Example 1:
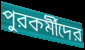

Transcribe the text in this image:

পুরকর্মীদের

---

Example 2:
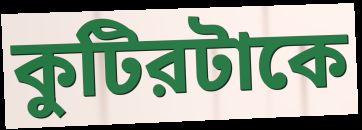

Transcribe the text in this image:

কুটিরটাকে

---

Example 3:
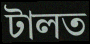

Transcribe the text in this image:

টালত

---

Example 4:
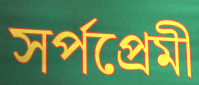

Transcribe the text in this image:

সর্পপ্রেমী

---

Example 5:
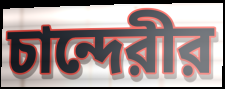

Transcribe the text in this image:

চান্দেরীর